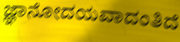
ಜ್ಞಾನೋದಯವಾದಂತಿದೆ